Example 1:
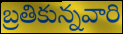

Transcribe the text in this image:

బ్రతికున్నవారి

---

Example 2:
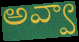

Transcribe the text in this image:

అవ్వా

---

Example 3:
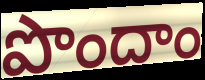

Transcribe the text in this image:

పొందాం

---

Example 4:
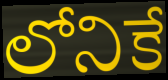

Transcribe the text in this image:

లోనికే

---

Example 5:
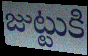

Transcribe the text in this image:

జుట్టుకి